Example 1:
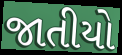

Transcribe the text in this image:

જાતીયો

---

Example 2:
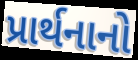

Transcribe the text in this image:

પ્રાર્થનાનો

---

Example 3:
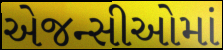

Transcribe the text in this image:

એજન્સીઓમાં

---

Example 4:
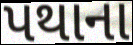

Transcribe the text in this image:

પથાના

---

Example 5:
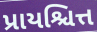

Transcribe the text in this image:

પ્રાયશ્ચિત્ત